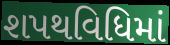
શપથવિધિમાં